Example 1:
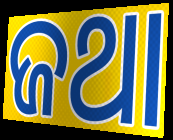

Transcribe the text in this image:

ଜଥା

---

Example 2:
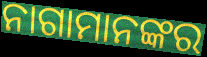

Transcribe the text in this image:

ନାଗାମାନଙ୍କର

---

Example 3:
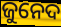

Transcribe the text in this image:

ଜୁନେଦ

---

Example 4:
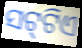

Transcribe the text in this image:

ସଟ୍‍ଟିଏ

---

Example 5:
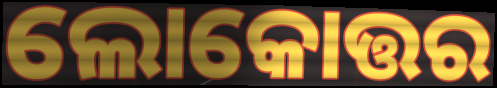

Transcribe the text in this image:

ଲୋକୋତ୍ତର